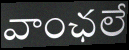
వాంఛలే